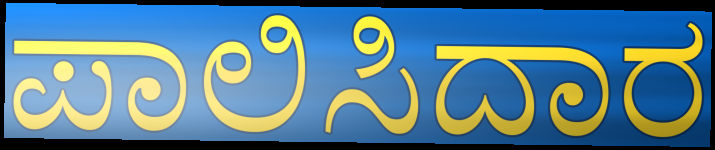
ಪಾಲಿಸಿದಾರ